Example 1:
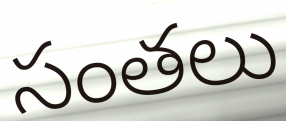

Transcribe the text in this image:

సంతలు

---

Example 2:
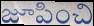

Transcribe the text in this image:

జూపించి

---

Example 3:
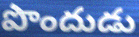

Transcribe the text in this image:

పొందుడు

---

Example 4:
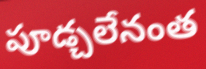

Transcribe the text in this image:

పూడ్చలేనంత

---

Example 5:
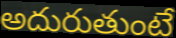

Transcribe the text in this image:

అదురుతుంటే